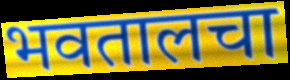
भवतालचा